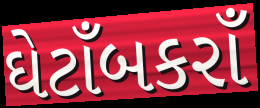
ઘેટાઁબકરાઁ